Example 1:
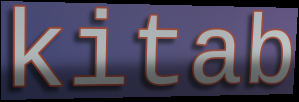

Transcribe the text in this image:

kitab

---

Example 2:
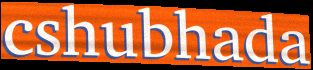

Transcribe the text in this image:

cshubhada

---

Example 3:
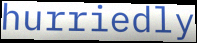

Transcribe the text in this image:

hurriedly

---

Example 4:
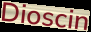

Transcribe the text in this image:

Dioscin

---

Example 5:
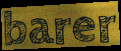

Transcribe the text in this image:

barer